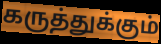
கருத்துக்கும்